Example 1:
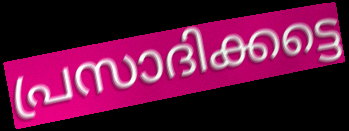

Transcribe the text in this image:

പ്രസാദിക്കട്ടെ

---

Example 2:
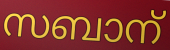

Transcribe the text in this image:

സബാന്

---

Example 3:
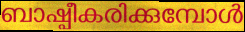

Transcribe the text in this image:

ബാഷ്പീകരിക്കുമ്പോൾ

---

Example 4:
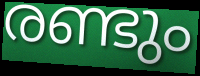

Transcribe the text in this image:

രണ്ടും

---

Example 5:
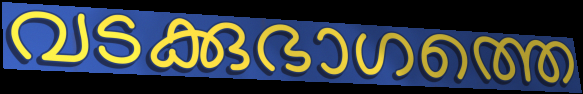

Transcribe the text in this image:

വടക്കുഭാഗത്തെ